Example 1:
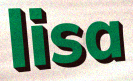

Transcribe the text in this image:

lisa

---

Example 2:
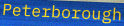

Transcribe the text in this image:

Peterborough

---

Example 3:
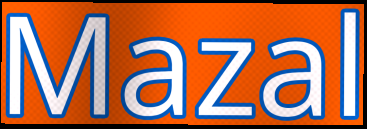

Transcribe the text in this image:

Mazal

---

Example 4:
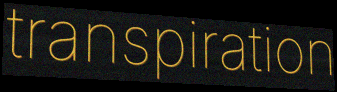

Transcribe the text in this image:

transpiration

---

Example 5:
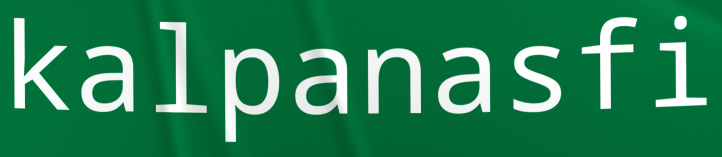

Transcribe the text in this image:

kalpanasfi